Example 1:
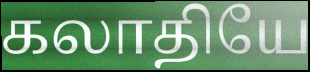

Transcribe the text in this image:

கலாதியே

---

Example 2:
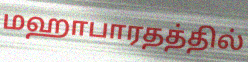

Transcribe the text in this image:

மஹாபாரதத்தில்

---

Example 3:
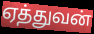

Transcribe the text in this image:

ஏத்துவன்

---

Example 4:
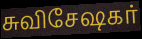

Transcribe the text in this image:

சுவிசேஷகர்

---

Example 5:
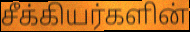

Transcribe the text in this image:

சீக்கியர்களின்